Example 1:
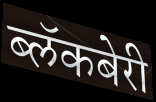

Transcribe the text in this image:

ब्लॅकबेरी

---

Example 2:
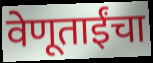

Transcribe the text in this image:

वेणूताईंचा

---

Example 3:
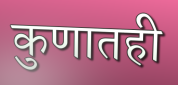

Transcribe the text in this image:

कुणातही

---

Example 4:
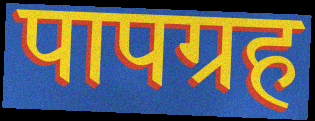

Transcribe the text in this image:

पापग्रह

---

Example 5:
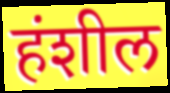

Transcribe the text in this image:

हंशील